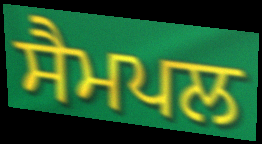
ਸੈਮਪਲ